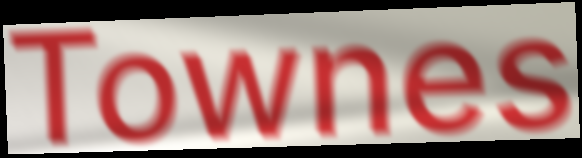
Townes